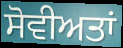
ਸੋਵੀਅਤਾਂ